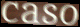
caso